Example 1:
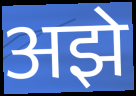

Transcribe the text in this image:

अझे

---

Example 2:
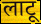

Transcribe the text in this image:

लाटू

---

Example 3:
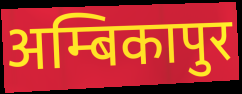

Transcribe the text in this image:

अम्बिकापुर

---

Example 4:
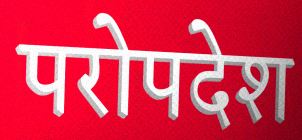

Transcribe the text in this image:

परोपदेश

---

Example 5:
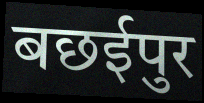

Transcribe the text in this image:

बछईपुर